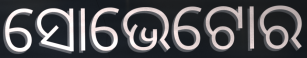
ସୋଭେଟୋର